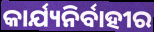
କାର୍ଯ୍ୟନିର୍ବାହୀର